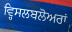
ਵ੍ਹਿਸਲਬਲੋਅਰਾਂ